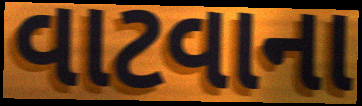
વાટવાના